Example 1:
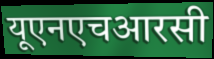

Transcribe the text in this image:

यूएनएचआरसी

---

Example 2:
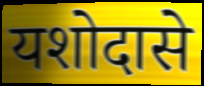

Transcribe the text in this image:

यशोदासे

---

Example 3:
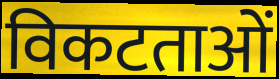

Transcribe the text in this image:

विकटताओं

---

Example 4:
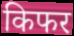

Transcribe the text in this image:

किफर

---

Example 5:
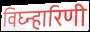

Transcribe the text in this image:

विघ्न्हारिणी